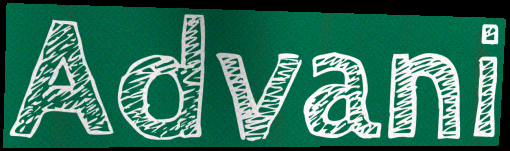
Advani